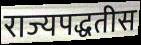
राज्यपद्धतीस